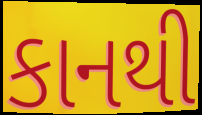
કાનથી